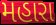
મહારા